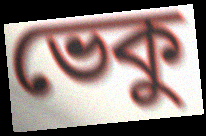
ভেকু